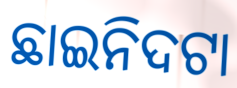
ଛାଇନିଦଟା